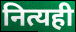
नित्यही